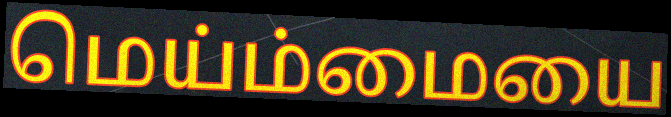
மெய்ம்மையை